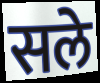
सले